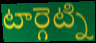
టార్గెట్ని